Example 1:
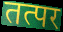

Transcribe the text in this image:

तत्पर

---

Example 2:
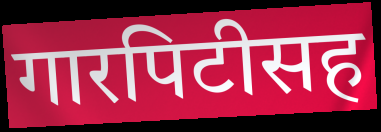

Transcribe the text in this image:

गारपिटीसह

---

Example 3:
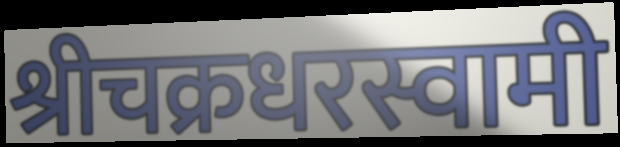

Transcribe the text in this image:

श्रीचक्रधरस्वामी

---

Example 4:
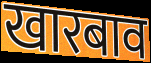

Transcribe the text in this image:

खारबाव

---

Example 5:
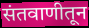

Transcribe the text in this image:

संतवाणीतून